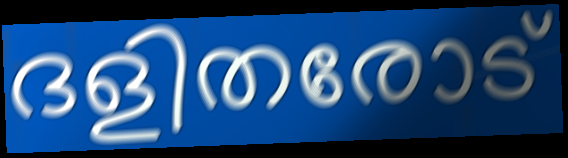
ദളിതരോട്